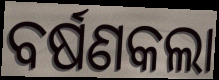
ବର୍ଷଣକଲା